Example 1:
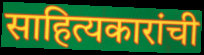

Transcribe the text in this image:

साहित्यकारांची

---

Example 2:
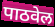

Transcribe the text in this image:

पाठवेल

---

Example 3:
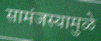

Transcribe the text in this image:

सामंजस्यामुळे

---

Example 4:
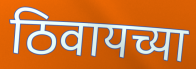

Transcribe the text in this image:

ठिवायच्या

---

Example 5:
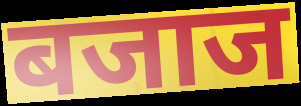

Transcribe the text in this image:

बजाज